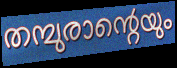
തമ്പുരാന്റെയും